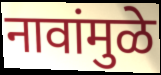
नावांमुळे